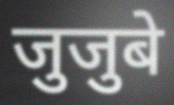
जुजुबे